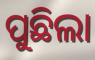
ପୁଛିଲା